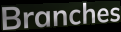
Branches